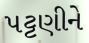
પટ્ટણીને